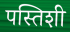
पस्तिशी